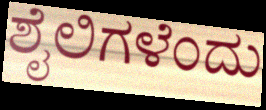
ಶೈಲಿಗಳೆಂದು